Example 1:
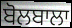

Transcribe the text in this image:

ਬੋਲਬਾਲਾ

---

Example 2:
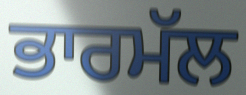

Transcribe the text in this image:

ਭਾਰਮੱਲ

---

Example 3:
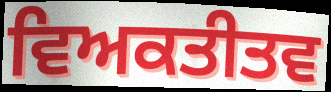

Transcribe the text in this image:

ਵਿਅਕਤੀਤਵ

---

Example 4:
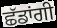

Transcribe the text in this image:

ਛੱਡਾਂਗੀ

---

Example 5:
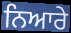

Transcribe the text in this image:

ਨਿਆਰੇ